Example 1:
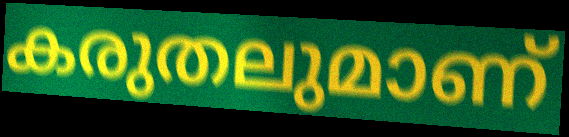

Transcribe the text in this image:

കരുതലുമാണ്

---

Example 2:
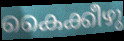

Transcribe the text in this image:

കൈക്കീഴു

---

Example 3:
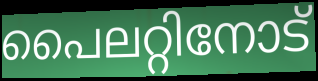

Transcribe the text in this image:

പൈലറ്റിനോട്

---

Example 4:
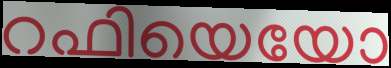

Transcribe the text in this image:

റഫിയെയോ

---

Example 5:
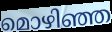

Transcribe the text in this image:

മൊഴിഞ്ഞ